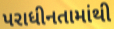
પરાધીનતામાંથી